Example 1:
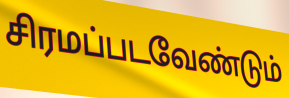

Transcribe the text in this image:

சிரமப்படவேண்டும்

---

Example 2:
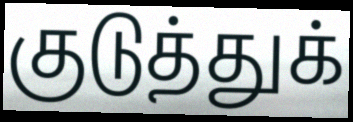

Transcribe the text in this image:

குடுத்துக்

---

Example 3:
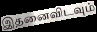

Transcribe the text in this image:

இதனைவிடவும்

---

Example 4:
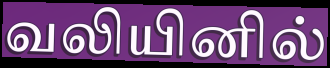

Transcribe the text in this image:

வலியினில்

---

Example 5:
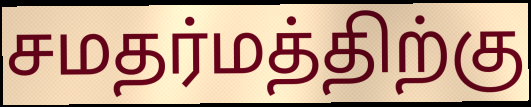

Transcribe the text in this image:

சமதர்மத்திற்கு